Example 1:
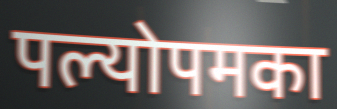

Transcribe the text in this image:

पल्योपमका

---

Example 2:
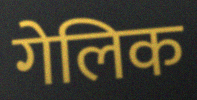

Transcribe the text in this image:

गेलिक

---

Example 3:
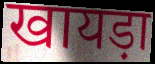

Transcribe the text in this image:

खायड़ा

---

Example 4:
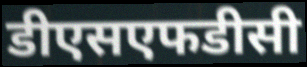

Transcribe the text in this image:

डीएसएफडीसी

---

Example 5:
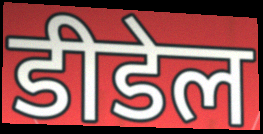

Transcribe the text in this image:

डीडेल